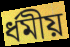
ৰ্ধমীয়